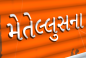
મેતેલ્લુસના